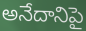
అనేదానిపై